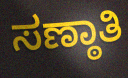
ಸಣ್ಠಾತಿ